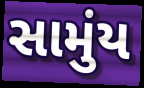
સામુંય